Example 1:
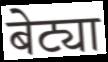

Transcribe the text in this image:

बेट्या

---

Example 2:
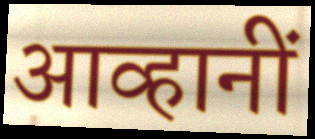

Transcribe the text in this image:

आव्हानीं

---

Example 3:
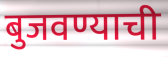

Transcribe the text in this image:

बुजवण्याची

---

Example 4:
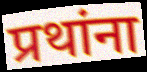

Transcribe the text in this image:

प्रथांना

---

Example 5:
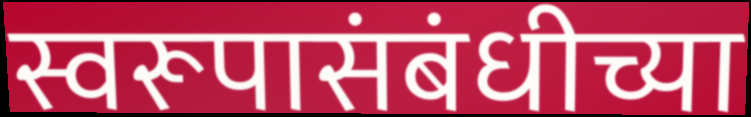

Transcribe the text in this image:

स्वरूपासंबंधीच्या